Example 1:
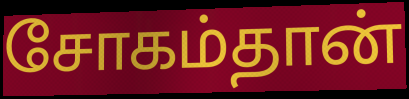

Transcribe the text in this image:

சோகம்தான்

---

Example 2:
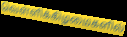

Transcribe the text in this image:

வெள்ளிக்கிழமைகளில்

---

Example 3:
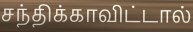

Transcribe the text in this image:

சந்திக்காவிட்டால்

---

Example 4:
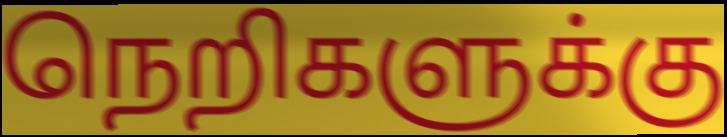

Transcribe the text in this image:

நெறிகளுக்கு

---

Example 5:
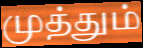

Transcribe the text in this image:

முத்தும்